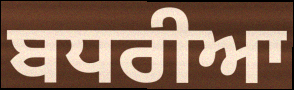
ਬਧਰੀਆ